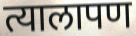
त्यालापण